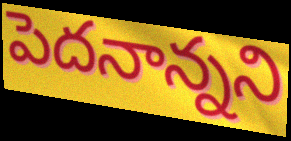
పెదనాన్నని